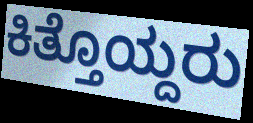
ಕಿತ್ತೊಯ್ದರು